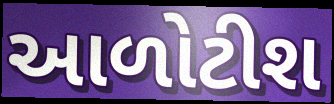
આળોટીશ